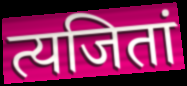
त्यजितां